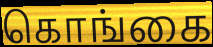
கொங்கை